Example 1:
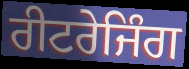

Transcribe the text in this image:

ਰੀਟਰੇਜਿੰਗ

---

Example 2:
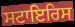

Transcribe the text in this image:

ਸਟਾਇਰਿਸ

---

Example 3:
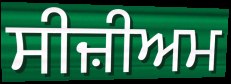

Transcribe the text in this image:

ਸੀਜ਼ੀਅਮ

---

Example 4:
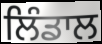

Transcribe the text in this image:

ਲਿੰਡਾਲ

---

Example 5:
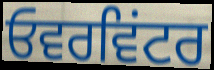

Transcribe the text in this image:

ਓਵਰਵਿਂਟਰ